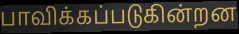
பாவிக்கப்படுகின்றன